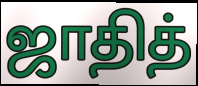
ஜாதித்